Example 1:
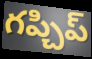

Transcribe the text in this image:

గప్చిప్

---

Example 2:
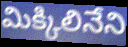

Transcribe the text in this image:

మిక్కిలినేని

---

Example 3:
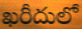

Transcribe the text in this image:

ఖరీదులో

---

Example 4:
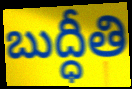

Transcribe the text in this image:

బుద్ధీతి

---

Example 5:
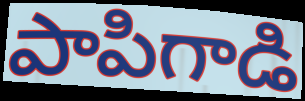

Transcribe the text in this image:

పాపిగాడి